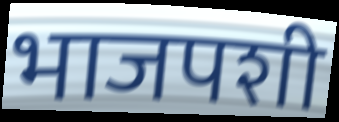
भाजपशी